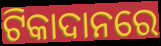
ଟିକାଦାନରେ